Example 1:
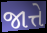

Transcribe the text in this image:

જાત્તે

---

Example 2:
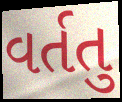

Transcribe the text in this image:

વર્તતુ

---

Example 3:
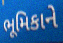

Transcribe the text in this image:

ભૂમિકાને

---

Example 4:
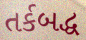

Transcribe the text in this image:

તર્કબદ્ધ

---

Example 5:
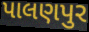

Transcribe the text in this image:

પાલણપુર